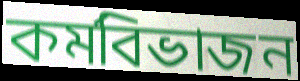
কর্মবিভাজন